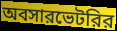
অবসারভেটরির